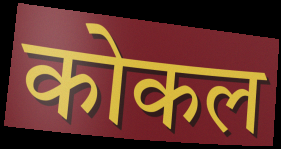
कोकल